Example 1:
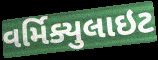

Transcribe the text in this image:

વર્મિક્યુલાઇટ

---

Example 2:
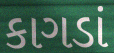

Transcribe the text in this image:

કાગડાં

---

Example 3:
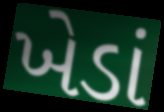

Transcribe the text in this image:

ખેડાં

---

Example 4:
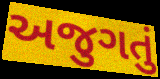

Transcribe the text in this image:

અજુગતું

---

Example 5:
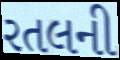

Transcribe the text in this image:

રતલની